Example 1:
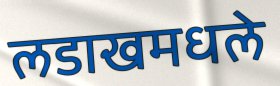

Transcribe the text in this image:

लडाखमधले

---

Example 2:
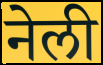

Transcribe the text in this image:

नेली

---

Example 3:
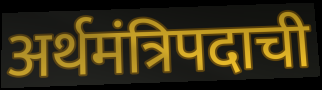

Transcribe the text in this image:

अर्थमंत्रिपदाची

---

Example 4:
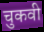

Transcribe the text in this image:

चुकवी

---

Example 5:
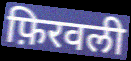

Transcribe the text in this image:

फ़िरवली